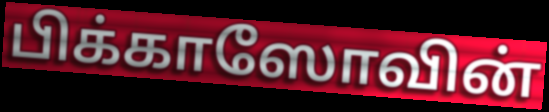
பிக்காஸோவின்